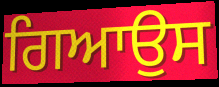
ਗਿਆਉਸ